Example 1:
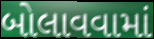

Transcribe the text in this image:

બોલાવવામાં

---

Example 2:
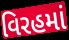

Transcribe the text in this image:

વિરહમાં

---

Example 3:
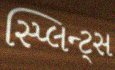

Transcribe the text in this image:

સ્પ્લિન્ટ્સ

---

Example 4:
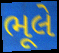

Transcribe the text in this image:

ભૂલે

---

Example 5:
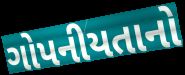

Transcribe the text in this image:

ગોપનીયતાનો